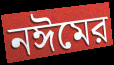
নঈমের